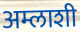
अम्लाशी